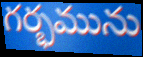
గర్భమును